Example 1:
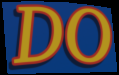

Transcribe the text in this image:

DO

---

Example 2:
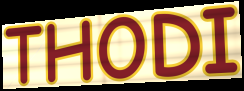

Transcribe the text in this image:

THODI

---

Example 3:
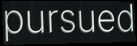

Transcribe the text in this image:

pursued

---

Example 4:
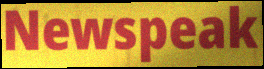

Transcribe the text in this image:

Newspeak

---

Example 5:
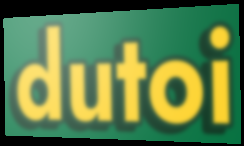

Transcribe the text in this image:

dutoi